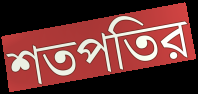
শতপতির